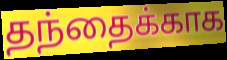
தந்தைக்காக